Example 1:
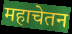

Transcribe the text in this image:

महाचेतन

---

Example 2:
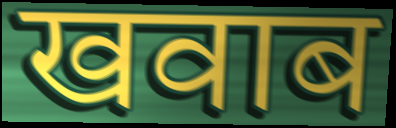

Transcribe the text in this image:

खवाब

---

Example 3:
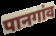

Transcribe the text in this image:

पानगांव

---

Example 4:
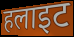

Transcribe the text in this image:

हलाइट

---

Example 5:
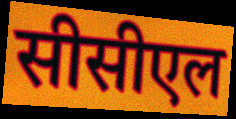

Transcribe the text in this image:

सीसीएल